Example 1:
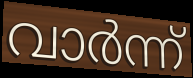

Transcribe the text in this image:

വാർന്ന്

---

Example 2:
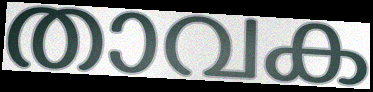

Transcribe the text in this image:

താവക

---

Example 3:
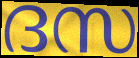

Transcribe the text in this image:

ദസ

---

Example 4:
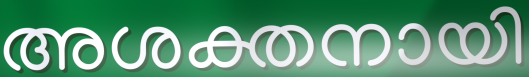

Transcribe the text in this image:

അശക്തനായി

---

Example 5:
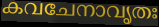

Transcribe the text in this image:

കവചേനാവൃതഃ